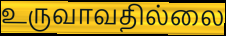
உருவாவதில்லை